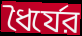
ধৈর্যের